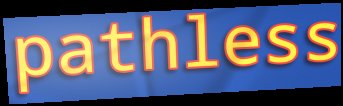
pathless